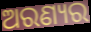
ଅରଣ୍ୟର